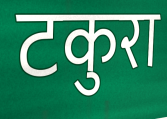
टकुरा